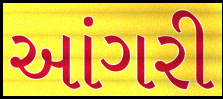
આંગરી